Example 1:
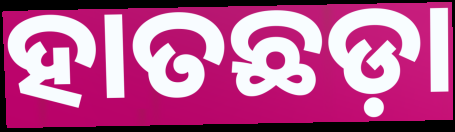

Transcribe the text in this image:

ହାତଛଡ଼ା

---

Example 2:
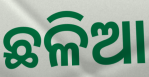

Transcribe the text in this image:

ଛଳିଆ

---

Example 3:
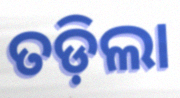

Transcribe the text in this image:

ତଡ଼ିଲା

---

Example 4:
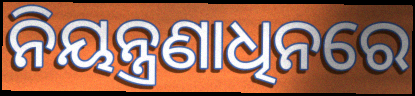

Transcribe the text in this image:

ନିୟନ୍ତ୍ରଣାଧିନରେ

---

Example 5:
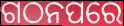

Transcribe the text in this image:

ଗଠନପରେ